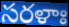
సరళాః